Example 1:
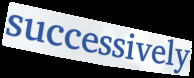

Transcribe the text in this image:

successively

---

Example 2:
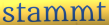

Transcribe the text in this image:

stammt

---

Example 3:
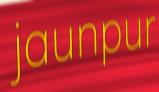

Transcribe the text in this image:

jaunpur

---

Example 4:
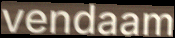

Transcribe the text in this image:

vendaam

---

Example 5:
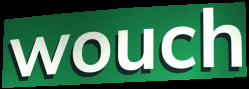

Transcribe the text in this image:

wouch